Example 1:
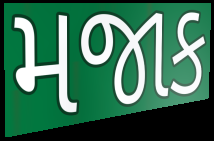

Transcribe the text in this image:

મજાક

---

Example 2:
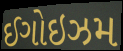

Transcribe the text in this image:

ઈગોઇઝમ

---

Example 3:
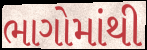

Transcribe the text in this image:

ભાગોમાંથી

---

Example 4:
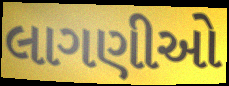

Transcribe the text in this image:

લાગણીઓ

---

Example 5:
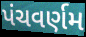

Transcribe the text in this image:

પંચવર્ણમ